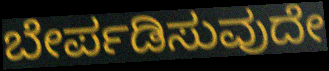
ಬೇರ್ಪಡಿಸುವುದೇ